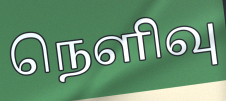
நெளிவு